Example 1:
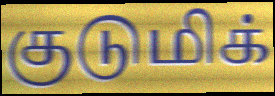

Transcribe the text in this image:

குடுமிக்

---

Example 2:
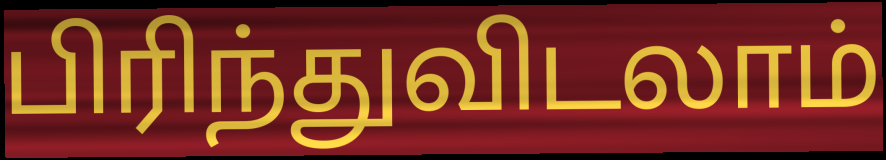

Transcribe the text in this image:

பிரிந்துவிடலாம்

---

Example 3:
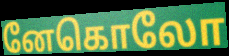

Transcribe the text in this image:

னேகொலோ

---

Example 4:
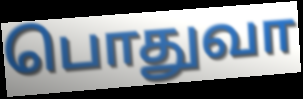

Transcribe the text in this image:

பொதுவா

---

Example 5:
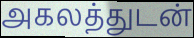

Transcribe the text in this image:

அகலத்துடன்